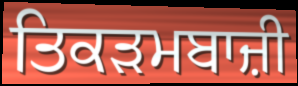
ਤਿਕੜਮਬਾਜ਼ੀ